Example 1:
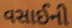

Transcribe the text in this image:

વસાઈની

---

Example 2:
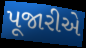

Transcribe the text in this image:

પૂજારીએ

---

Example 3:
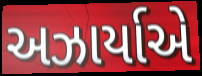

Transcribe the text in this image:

અઝાર્યાએ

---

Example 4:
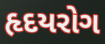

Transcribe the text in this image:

હૃદયરોગ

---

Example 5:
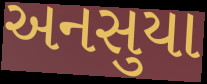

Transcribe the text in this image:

અનસુયા